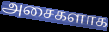
அசைகளாக